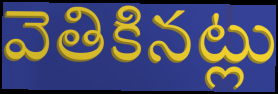
వెతికినట్లు